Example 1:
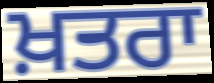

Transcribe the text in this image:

ਖ਼ਤਰਾ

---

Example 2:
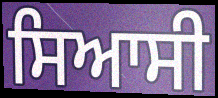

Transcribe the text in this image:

ਸਿਆਸੀ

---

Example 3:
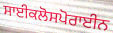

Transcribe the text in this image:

ਸਾਈਕਲੋਸਪੋਰਾਈਨ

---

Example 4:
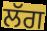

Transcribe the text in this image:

ਲੱਗ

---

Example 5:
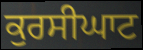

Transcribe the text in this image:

ਕੁਰਸੀਘਾਟ